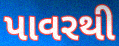
પાવરથી